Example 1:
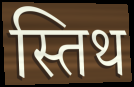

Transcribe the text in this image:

स्तिथ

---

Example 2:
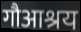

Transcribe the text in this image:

गौआश्रय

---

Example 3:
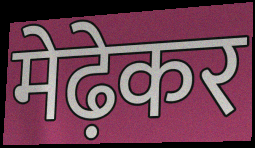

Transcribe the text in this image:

मेढ़ेकर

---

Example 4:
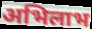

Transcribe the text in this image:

अभिलाभ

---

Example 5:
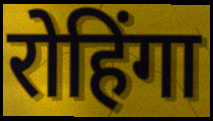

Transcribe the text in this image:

रोहिंगा